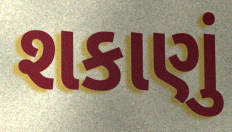
શકાણું